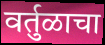
वर्तुळाचा